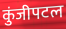
कुंजीपटल